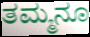
ತಮ್ಮನೂ